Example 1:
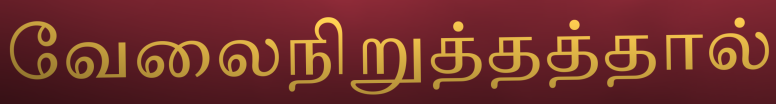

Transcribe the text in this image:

வேலைநிறுத்தத்தால்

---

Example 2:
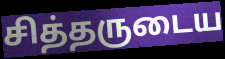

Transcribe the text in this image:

சித்தருடைய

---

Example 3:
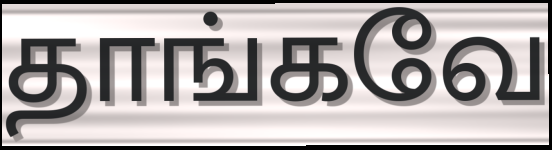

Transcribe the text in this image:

தாங்கவே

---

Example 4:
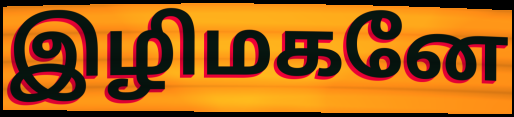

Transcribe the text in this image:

இழிமகனே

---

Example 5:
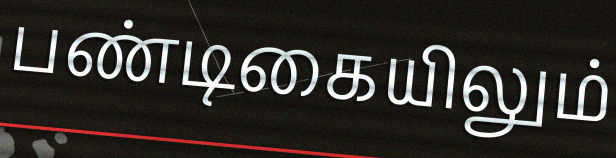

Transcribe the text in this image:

பண்டிகையிலும்